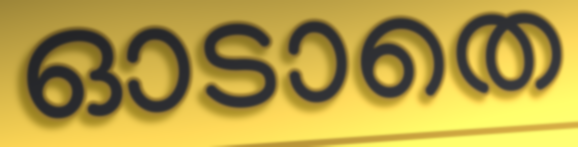
ഓടാതെ